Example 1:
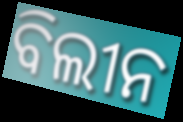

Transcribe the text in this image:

ବିଲୀନ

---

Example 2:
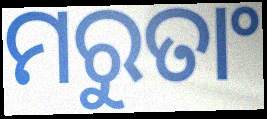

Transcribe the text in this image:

ମରୁତାଂ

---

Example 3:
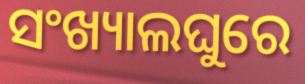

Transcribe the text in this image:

ସଂଖ୍ୟାଲଘୁରେ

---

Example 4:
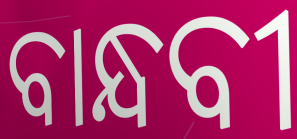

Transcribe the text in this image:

ବାନ୍ଧବୀ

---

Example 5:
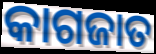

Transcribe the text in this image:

କାଗଜାତ